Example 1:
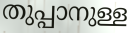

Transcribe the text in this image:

തുപ്പാനുള്ള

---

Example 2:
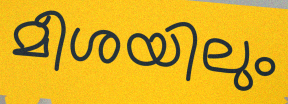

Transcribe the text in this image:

മീശയിലും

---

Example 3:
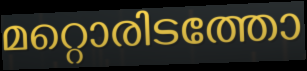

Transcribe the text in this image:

മറ്റൊരിടത്തോ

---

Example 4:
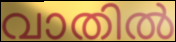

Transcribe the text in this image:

വാതിൽ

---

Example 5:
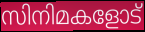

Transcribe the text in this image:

സിനിമകളോട്